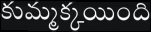
కుమ్మక్కయింది